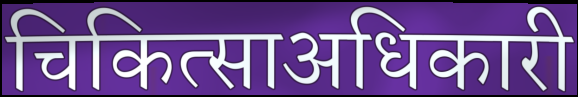
चिकित्साअधिकारी